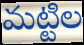
మట్టిల